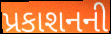
પ્રકાશનની